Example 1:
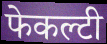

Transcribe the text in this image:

फेकल्टी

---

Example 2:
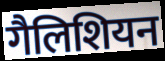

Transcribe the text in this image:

गैलिशियन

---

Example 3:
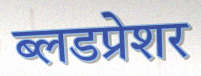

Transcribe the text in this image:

ब्लडप्रेशर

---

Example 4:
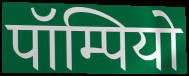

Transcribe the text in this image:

पॉम्पियो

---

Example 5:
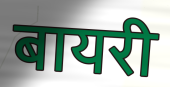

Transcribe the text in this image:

बायरी